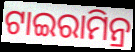
ଟାଇରାମିନ୍ର